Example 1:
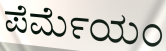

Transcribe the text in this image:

ಪೆರ್ಮೆಯಂ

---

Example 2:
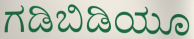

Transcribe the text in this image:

ಗಡಿಬಿಡಿಯೂ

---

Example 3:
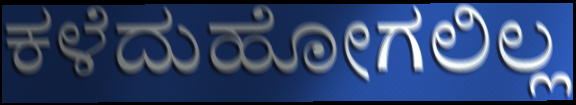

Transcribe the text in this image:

ಕಳೆದುಹೋಗಲಿಲ್ಲ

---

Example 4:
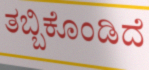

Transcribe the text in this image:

ತಬ್ಬಿಕೊಂಡಿದೆ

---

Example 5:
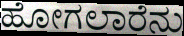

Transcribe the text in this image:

ಹೋಗಲಾರೆನು